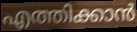
എത്തിക്കാൻ